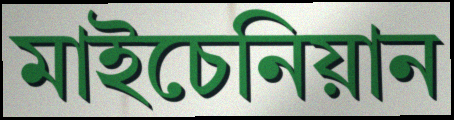
মাইচেনিয়ান